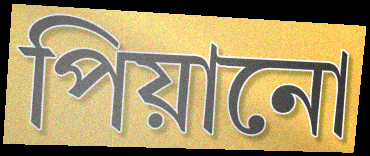
পিয়ানো